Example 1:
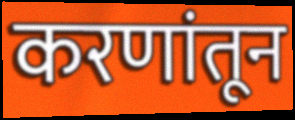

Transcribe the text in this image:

करणांतून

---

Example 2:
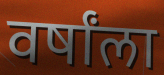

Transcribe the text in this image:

वर्षांला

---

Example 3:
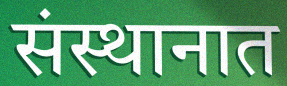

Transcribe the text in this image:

संस्थानात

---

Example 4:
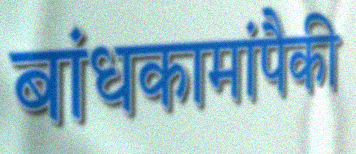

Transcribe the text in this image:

बांधकामांपैकी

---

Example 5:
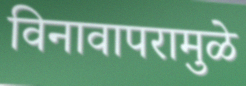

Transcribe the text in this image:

विनावापरामुळे